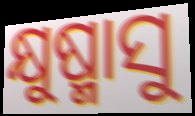
କ୍ଷୁଷ୍ମାସୁ